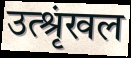
उत्श्रृंखल